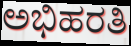
ಅಭಿಹರತಿ